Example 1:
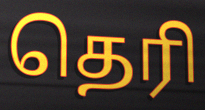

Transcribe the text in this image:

தெரி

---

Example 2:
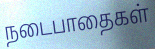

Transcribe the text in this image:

நடைபாதைகள்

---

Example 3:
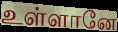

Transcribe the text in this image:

உள்ளானே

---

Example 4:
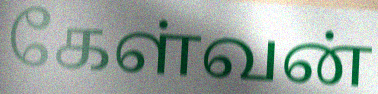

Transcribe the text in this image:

கேள்வன்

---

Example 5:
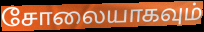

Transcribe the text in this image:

சோலையாகவும்